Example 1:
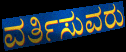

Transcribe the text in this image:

ವರ್ತಿಸುವರು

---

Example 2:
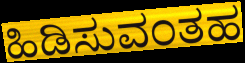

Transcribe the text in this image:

ಹಿಡಿಸುವಂತಹ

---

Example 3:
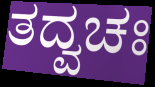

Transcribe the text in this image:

ತದ್ವಚಃ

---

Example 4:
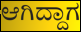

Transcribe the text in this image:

ಆಗಿದ್ದಾಗ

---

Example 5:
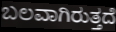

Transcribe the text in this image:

ಬಲವಾಗಿರುತ್ತದೆ